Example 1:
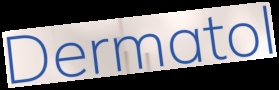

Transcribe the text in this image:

Dermatol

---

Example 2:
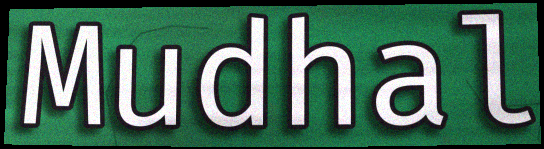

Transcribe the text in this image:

Mudhal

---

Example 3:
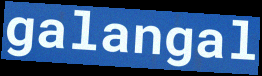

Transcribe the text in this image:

galangal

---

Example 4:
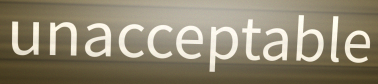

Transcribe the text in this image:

unacceptable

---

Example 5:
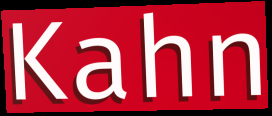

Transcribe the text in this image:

Kahn